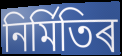
নিৰ্মিতিৰ